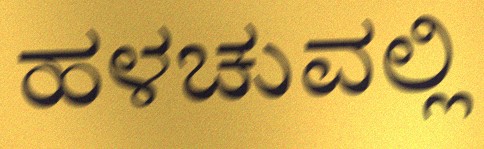
ಹಳಚುವಲ್ಲಿ